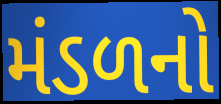
મંડળનો